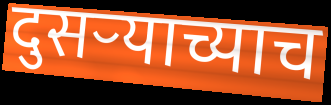
दुसऱ्याच्याच